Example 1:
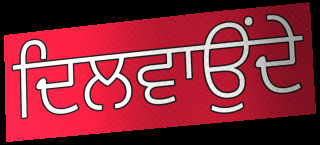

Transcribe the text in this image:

ਦਿਲਵਾਉਂਦੇ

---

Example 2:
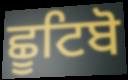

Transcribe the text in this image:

ਛੂਟਿਬੋ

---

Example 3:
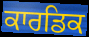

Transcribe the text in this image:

ਕਾਰਡਿਕ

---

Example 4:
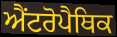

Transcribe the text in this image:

ਐਂਟਰੋਪੈਥਿਕ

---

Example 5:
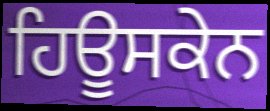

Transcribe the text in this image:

ਹਿਊਸਕੇਨ